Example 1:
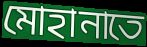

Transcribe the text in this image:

মোহানাতে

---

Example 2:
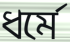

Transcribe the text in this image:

ধর্মে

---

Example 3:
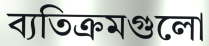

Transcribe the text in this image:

ব্যতিক্রমগুলো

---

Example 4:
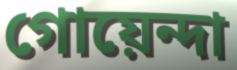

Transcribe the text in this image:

গোয়েন্দা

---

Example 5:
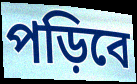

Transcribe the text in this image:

পড়িবে